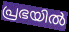
പ്രഭയിൽ